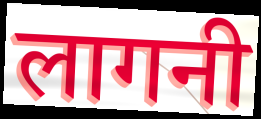
लागनी